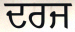
ਦਰਜ